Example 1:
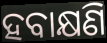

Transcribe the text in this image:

ହବାକ୍ଷଣି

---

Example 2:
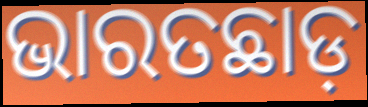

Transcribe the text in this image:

ଭାରତଛାଡ଼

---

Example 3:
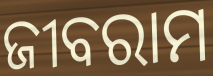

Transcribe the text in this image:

ଜୀବରାମ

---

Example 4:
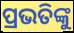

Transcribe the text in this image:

ପ୍ରଭତିଙ୍କୁ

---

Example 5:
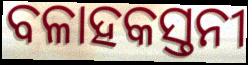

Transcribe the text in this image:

ବଳାହକସ୍ତନୀ